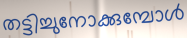
തട്ടിച്ചുനോക്കുമ്പോൾ